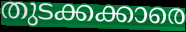
തുടക്കക്കാരെ